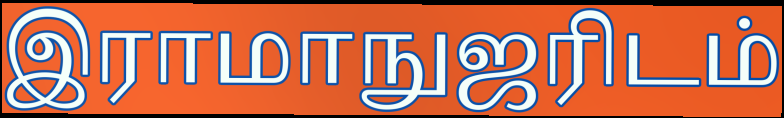
இராமாநுஜரிடம்